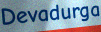
Devadurga